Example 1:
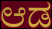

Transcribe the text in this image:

ಆಡ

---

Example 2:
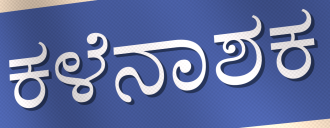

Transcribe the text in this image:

ಕಳೆನಾಶಕ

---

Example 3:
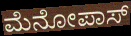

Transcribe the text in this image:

ಮೆನೋಪಾಸ್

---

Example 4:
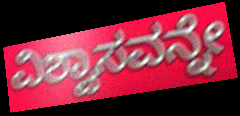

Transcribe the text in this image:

ವಿಶ್ವಾಸವನ್ನೇ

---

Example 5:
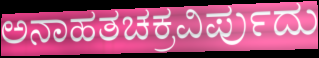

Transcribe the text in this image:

ಅನಾಹತಚಕ್ರವಿರ್ಪುದು